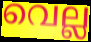
വെല്ല